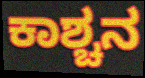
ಕಾಶ್ಚನ